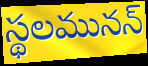
స్థలమునన్